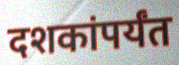
दशकांपर्यंत